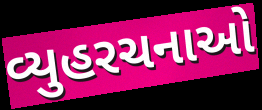
વ્યુહરચનાઓ